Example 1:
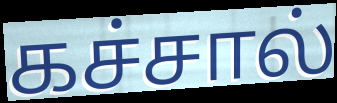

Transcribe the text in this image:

கச்சால்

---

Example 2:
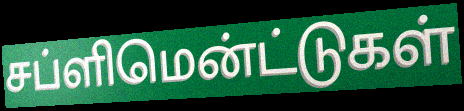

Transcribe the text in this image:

சப்ளிமென்ட்டுகள்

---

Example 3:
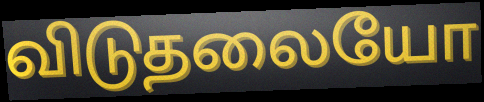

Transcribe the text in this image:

விடுதலையோ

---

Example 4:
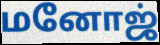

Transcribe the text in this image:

மனோஜ்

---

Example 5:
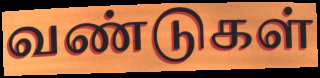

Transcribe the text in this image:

வண்டுகள்